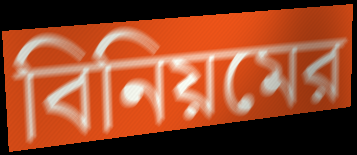
বিনিয়মের